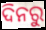
ଦିନରୁ